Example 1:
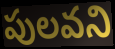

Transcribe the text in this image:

పులవని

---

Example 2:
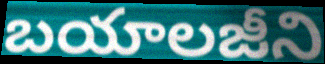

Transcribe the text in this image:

బయాలజీని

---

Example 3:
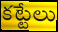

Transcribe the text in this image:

కట్టేలు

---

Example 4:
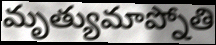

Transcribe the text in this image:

మృత్యుమాప్నోతి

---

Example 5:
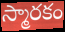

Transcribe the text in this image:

స్మారకం